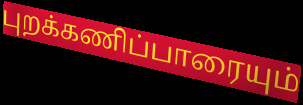
புறக்கணிப்பாரையும்